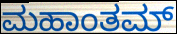
ಮಹಾಂತಮ್